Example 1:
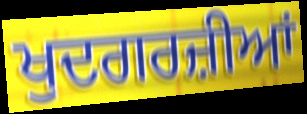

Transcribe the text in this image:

ਖੁਦਗਰਜ਼ੀਆਂ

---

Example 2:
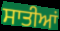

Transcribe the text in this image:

ਸਾਤੀਆਂ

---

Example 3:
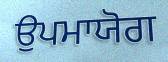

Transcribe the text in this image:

ਉਪਮਾਯੋਗ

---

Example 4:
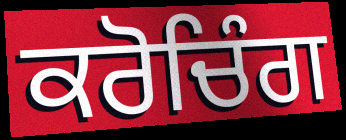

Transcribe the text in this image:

ਕਰੋਚਿੰਗ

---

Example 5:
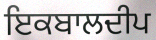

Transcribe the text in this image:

ਇਕਬਾਲਦੀਪ